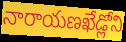
నారాయణఖేడ్లోని